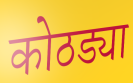
कोठड्या